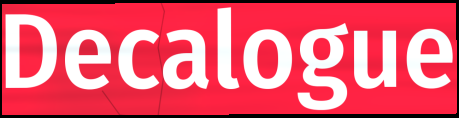
Decalogue